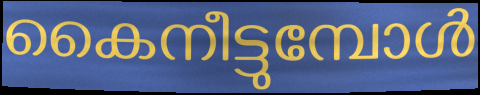
കൈനീട്ടുമ്പോൾ